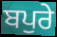
ਬਪੁਰੇ